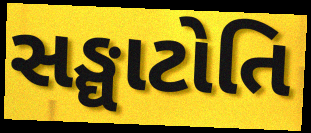
સઙ્ઘાટોતિ